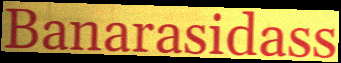
Banarasidass